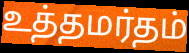
உத்தமர்தம்